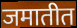
जमातीत